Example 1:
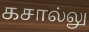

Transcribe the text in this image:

கசால்லு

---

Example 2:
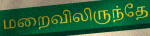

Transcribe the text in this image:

மறைவிலிருந்தே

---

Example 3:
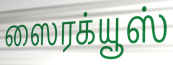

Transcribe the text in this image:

ஸைரக்யூஸ்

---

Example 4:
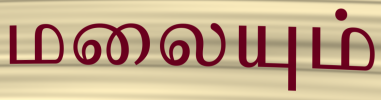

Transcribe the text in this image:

மலையும்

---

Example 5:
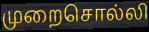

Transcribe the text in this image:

முறைசொல்லி